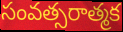
సంవత్సరాత్మక